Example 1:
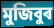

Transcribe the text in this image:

মুজিবুৰ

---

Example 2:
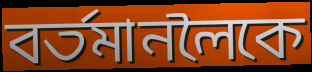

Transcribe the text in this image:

বৰ্তমানলৈকে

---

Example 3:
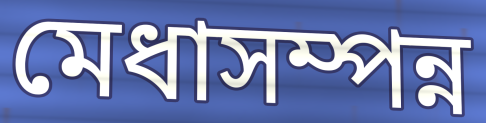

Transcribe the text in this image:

মেধাসম্পন্ন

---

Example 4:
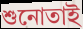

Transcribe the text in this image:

শুনোতাই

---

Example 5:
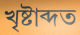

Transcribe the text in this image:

খৃষ্টাব্দত